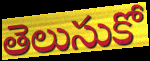
తెలుసుకో